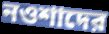
নওশাদের